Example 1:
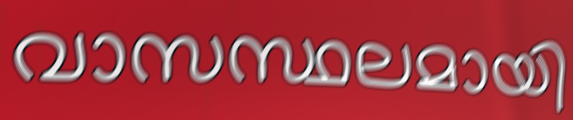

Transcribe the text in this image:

വാസസ്ഥലമായി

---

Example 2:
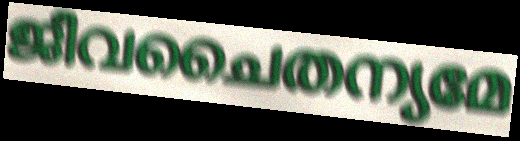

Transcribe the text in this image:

ജീവചൈതന്യമേ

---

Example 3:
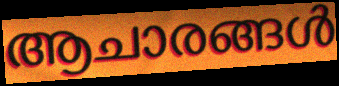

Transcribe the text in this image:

ആചാരങ്ങൾ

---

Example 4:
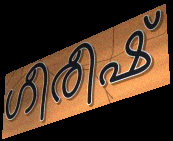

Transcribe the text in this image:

ഗീരീഷ്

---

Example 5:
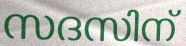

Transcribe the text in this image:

സദസിന്